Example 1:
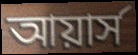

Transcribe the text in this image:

আয়ার্স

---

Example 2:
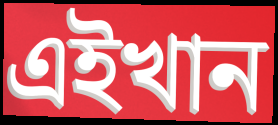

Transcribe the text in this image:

এইখান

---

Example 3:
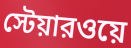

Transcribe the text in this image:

স্টেয়ারওয়ে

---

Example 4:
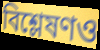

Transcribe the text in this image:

বিশ্লেষণও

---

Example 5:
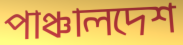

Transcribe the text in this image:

পাঞ্চালদেশ